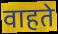
वाहते